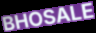
BHOSALE